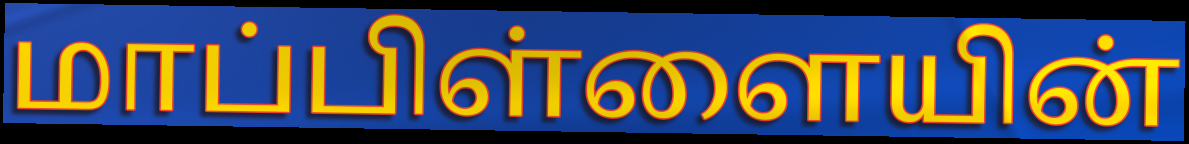
மாப்பிள்ளையின்